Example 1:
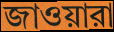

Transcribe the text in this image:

জাওয়ারা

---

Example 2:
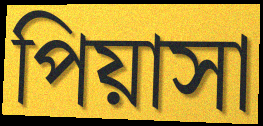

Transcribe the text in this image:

পিয়াসা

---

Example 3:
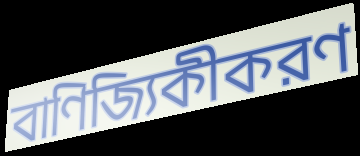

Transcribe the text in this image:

বাণিজ্যিকীকরণ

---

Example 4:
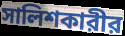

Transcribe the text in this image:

সালিশকারীর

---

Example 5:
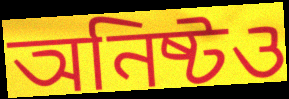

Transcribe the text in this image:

অনিষ্টও